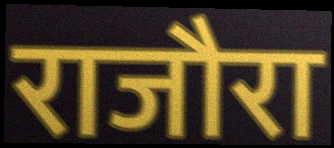
राजौरा